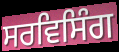
ਸਰਵਿਸਿੰਗ